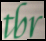
tbr